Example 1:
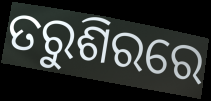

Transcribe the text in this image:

ତରୁଶିରରେ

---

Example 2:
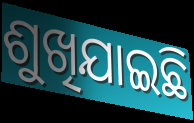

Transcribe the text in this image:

ଶୁଖିଯାଇଛି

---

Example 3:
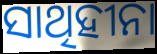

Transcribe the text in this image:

ସାଥିହୀନା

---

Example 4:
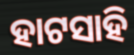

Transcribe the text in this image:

ହାଟସାହି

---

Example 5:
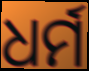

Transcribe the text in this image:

ଧର୍ମ